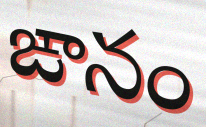
ఙానం